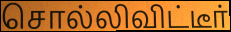
சொல்லிவிட்டீர்